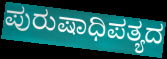
ಪುರುಷಾಧಿಪತ್ಯದ